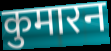
कुमारन